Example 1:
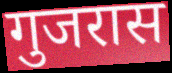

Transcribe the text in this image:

गुजरास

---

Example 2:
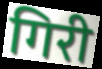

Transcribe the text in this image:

गिरी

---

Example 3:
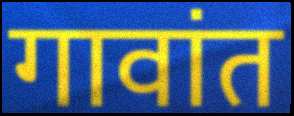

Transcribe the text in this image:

गावांत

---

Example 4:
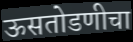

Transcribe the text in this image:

ऊसतोडणीचा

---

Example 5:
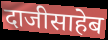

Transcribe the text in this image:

दाजीसाहेब